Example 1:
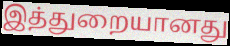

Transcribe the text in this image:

இத்துறையானது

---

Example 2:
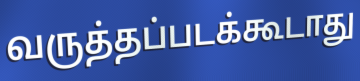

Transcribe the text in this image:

வருத்தப்படக்கூடாது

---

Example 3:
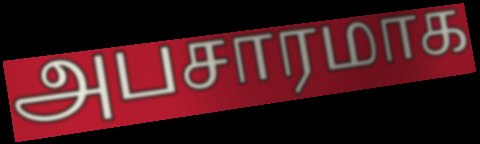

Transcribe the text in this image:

அபசாரமாக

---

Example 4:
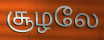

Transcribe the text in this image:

சூழலே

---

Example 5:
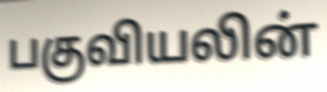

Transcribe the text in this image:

பகுவியலின்